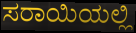
ಸರಾಯಿಯಲ್ಲಿ